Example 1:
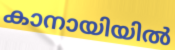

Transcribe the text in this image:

കാനായിയിൽ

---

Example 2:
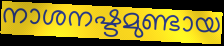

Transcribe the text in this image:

നാശനഷ്ടമുണ്ടായ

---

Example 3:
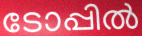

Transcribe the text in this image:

ടോപ്പിൽ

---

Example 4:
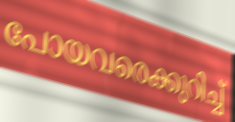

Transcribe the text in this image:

പോയവരെക്കുറിച്ച്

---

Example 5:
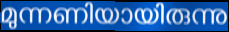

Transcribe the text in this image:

മുന്നണിയായിരുന്നു